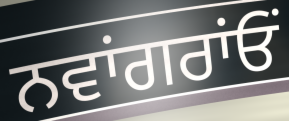
ਨਵਾਂਗਰਾਂਓਂ